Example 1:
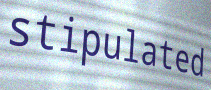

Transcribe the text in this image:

stipulated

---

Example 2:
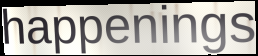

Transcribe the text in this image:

happenings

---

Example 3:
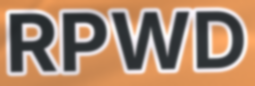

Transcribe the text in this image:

RPWD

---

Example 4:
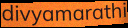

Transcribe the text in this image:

divyamarathi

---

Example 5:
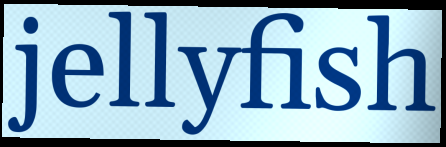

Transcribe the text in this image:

jellyfish